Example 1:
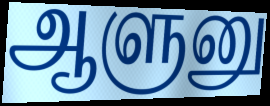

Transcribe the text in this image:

ஆளுனு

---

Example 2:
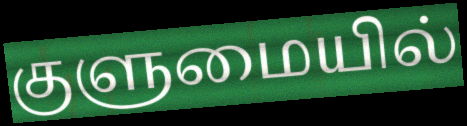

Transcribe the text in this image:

குளுமையில்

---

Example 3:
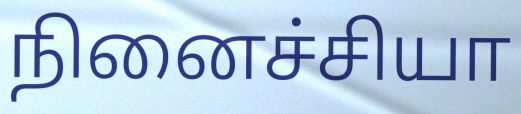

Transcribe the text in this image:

நினைச்சியா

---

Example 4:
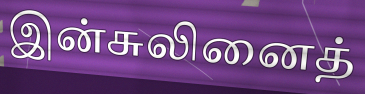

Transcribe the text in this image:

இன்சுலினைத்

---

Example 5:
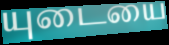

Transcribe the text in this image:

யுடையை